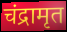
चंद्रामृत